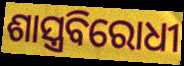
ଶାସ୍ତ୍ରବିରୋଧୀ